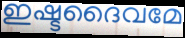
ഇഷ്ടദൈവമേ